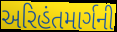
અરિહંતમાર્ગની